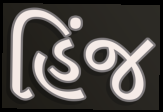
હિંજ